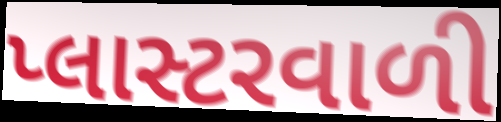
પ્લાસ્ટરવાળી